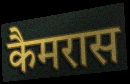
कैमरास